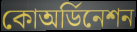
কোঅর্ডিনেশন